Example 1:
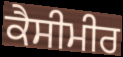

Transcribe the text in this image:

ਕੈਸੀਮੀਰ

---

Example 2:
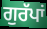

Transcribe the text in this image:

ਗੁਰੱਪਾਂ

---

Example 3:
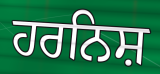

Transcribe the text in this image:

ਹਰਨਿਸ਼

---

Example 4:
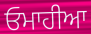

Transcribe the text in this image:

ਓਮਾਹੀਆ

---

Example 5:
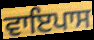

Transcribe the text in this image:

ਵਾਇਪਾਸ